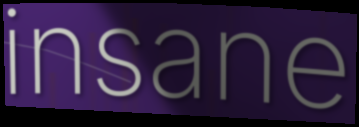
insane